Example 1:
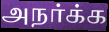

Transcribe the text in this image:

அநர்க்க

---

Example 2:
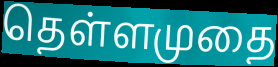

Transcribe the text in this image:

தெள்ளமுதை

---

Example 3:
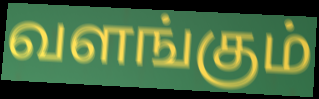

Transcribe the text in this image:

வளங்கும்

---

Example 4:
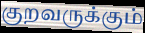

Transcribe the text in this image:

குறவருக்கும்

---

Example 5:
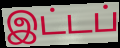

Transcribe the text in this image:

இட்டப்